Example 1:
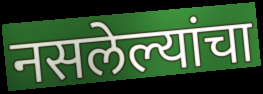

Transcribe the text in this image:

नसलेल्यांचा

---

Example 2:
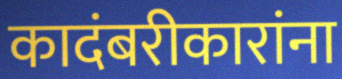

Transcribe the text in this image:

कादंबरीकारांना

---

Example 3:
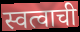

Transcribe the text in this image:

स्वत्वाची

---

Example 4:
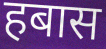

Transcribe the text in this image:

हबास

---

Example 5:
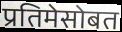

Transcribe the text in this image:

प्रतिमेसोबत